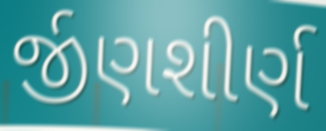
ર્જીણશીર્ણ